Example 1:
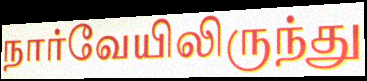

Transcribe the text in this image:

நார்வேயிலிருந்து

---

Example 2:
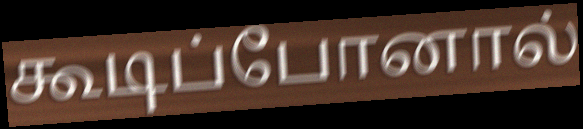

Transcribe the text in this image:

கூடிப்போனால்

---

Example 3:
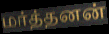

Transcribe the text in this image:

மர்த்தனன்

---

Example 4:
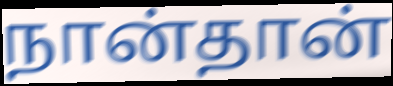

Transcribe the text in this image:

நான்தான்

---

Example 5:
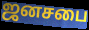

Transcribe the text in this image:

ஜனசபை